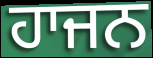
ਹਾਜਨ